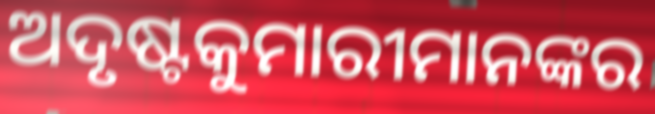
ଅଦୃଷ୍ଟକୁମାରୀମାନଙ୍କର